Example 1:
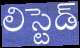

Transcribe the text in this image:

లిస్టెడ్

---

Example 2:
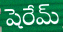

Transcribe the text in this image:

షెరేమ్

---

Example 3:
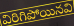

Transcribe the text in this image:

విరిగిపోయినవి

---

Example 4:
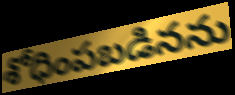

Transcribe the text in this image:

శోధింపబడినను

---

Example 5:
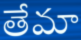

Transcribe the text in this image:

తేమా